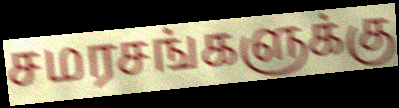
சமரசங்களுக்கு